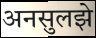
अनसुलझे